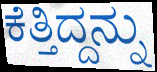
ಕೆತ್ತಿದ್ದನ್ನು